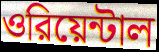
ওরিয়েন্টাল